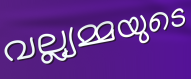
വല്ല്യമ്മയുടെ